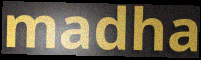
madha